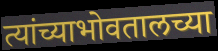
त्यांच्याभोवतालच्या